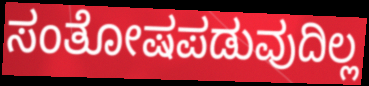
ಸಂತೋಷಪಡುವುದಿಲ್ಲ